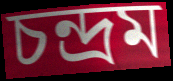
চন্দ্রম